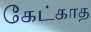
கேட்காத